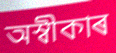
অস্বীকাৰ